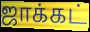
ஜாக்கட்